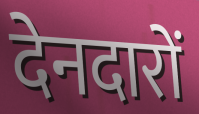
देनदारों